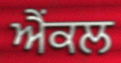
ਐਂਕਲ